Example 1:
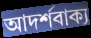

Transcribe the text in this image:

আদর্শবাক্য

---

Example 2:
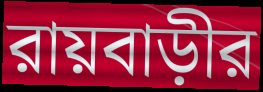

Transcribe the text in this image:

রায়বাড়ীর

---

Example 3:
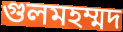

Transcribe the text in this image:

গুলমহম্মদ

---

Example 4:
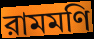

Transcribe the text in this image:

রামমণি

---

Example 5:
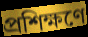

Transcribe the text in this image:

প্রশিক্ষণে